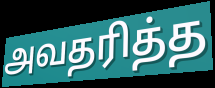
அவதரித்த